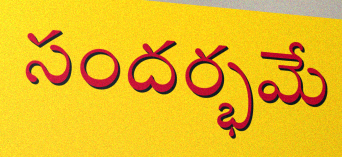
సందర్భమే